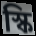
স্কি